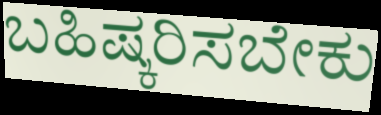
ಬಹಿಷ್ಕರಿಸಬೇಕು